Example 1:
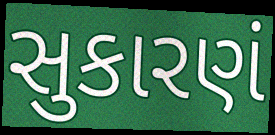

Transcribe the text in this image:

સુકારણં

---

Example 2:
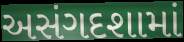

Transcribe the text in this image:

અસંગદશામાં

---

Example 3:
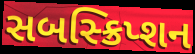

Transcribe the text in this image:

સબસ્ક્રિપ્શન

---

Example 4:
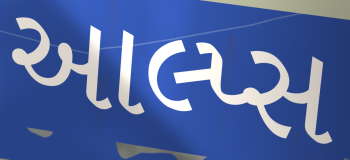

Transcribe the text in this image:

આલ્પ્સ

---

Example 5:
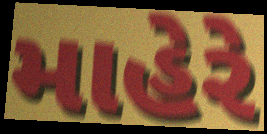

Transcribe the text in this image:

માહેરે